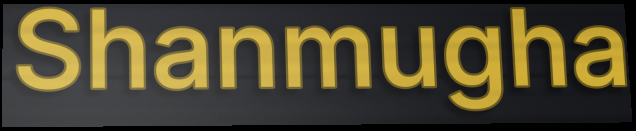
Shanmugha